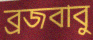
ব্রজবাবু